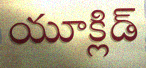
యూక్లిడ్